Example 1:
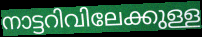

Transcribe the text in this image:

നാട്ടറിവിലേക്കുള്ള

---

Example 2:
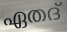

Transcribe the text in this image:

ഏതദ്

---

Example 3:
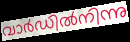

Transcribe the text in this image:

വാർഡിൽനിന്നു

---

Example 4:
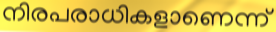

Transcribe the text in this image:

നിരപരാധികളാണെന്ന്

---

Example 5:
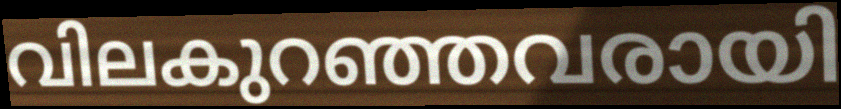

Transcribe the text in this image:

വിലകുറഞ്ഞവരായി